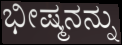
ಭೀಷ್ಮನನ್ನು